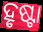
ହୃଷ୍ଟା